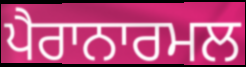
ਪੈਰਾਨਾਰਮਲ